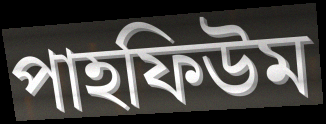
পাহফিউম